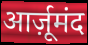
आर्ज़ूमंद